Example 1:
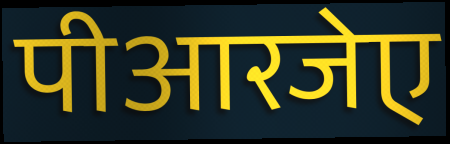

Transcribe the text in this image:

पीआरजेए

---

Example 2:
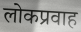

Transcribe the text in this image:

लोकप्रवाह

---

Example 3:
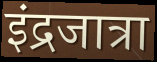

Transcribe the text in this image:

इंद्रजात्रा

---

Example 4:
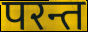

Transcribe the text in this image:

परन्त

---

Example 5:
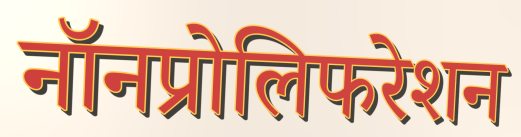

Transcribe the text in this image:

नॉनप्रोलिफरेशन